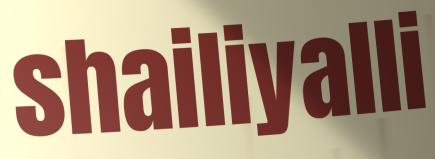
shailiyalli